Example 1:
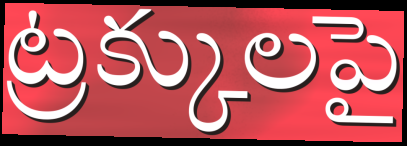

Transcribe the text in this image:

ట్రక్కులపై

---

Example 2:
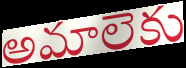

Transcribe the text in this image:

అమాలెకు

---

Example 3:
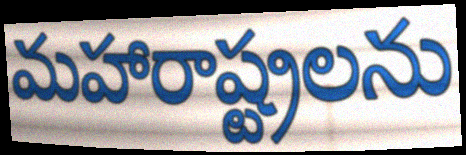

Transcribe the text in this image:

మహారాష్ట్రలను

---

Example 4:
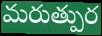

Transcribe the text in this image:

మరుత్పుర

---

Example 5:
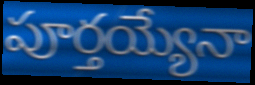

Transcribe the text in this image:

పూర్తయ్యేనా